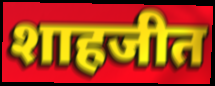
शाहजीत